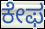
ಕೇಫ